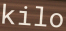
kilo